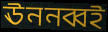
ঊননব্বই